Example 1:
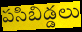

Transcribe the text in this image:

పసిబిడ్డలు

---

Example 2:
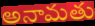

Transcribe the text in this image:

అనామతు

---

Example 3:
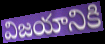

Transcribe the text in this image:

విజయానికి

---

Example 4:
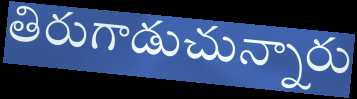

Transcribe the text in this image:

తిరుగాడుచున్నారు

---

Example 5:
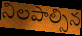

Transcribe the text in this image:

నిలపాల్సిన